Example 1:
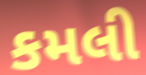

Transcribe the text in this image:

કમલી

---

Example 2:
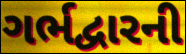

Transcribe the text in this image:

ગર્ભદ્વારની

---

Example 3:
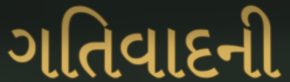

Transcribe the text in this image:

ગતિવાદની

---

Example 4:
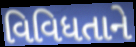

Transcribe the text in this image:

વિવિધતાને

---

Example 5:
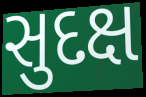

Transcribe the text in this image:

સુદક્ષ